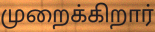
முறைக்கிறார்